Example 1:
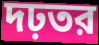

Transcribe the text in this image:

দঢ়তর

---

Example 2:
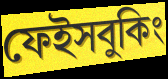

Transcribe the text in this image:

ফেইসবুকিং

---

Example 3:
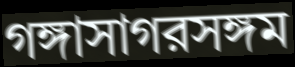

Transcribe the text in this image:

গঙ্গাসাগরসঙ্গম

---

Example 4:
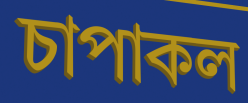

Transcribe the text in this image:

চাপাকল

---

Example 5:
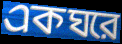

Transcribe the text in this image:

একঘরে